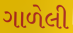
ગાળેલી